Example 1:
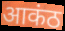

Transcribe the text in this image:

आकंठ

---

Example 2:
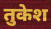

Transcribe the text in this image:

तुकेश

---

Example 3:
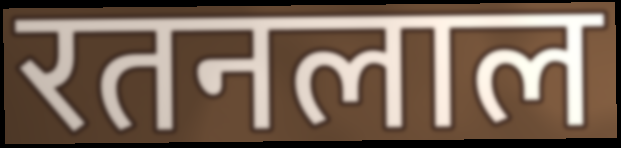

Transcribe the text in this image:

रतनलाल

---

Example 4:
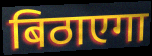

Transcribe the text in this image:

बिठाएगा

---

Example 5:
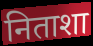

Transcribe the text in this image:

निताशा